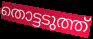
തൊട്ടടുത്ത്